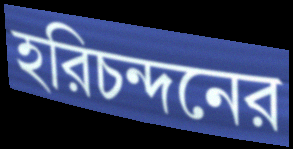
হরিচন্দনের